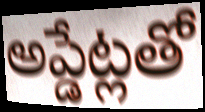
అప్డేట్లతో